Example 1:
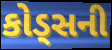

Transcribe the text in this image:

કોડ્સની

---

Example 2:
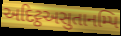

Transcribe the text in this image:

અદિટ્ઠઅસુતાનમ્પિ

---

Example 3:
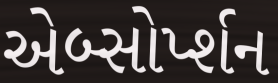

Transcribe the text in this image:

એબ્સોર્પ્શન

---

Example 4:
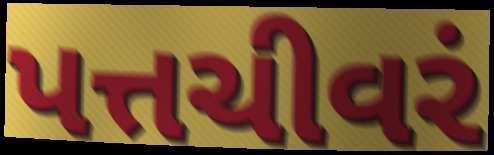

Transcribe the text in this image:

પત્તચીવરં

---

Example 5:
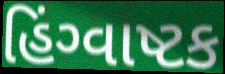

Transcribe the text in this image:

હિંગ્વાષ્ટક